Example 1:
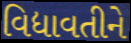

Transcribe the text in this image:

વિદ્યાવતીને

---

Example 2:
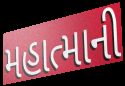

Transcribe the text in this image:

મહાત્માની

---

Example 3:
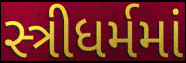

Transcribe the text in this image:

સ્ત્રીધર્મમાં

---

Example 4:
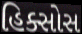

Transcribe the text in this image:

હિક્સોસ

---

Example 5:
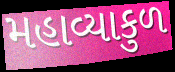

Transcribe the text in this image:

મહાવ્યાકુળ